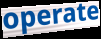
operate